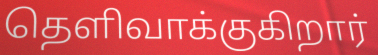
தெளிவாக்குகிறார்